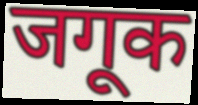
जगूक